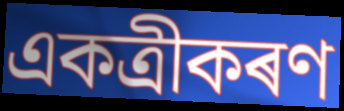
একত্ৰীকৰণ